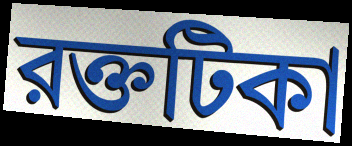
রক্তটিকা